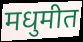
मधुमीत